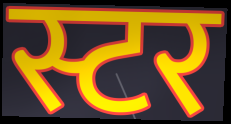
स्टर